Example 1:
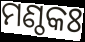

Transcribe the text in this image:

ମଣ୍ଠକଃ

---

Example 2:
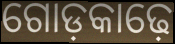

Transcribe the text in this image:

ଗୋଡ଼କାଢ଼େ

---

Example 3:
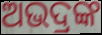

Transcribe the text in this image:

ଅଭଦ୍ରଙ୍କ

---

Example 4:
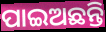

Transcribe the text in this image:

ପାଇଅଛନ୍ତି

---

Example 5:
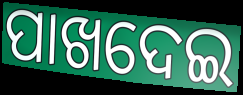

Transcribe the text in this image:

ପାଖଦେଇ